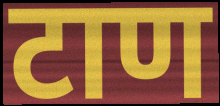
टाण